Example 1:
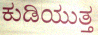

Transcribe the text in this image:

ಕುಡಿಯುತ್ತ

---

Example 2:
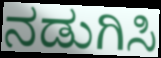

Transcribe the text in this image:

ನಡುಗಿಸಿ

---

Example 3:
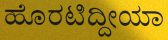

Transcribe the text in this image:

ಹೊರಟಿದ್ದೀಯಾ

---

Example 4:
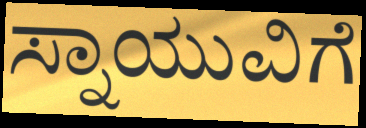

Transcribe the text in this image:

ಸ್ನಾಯುವಿಗೆ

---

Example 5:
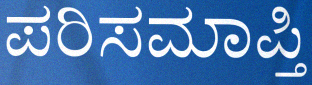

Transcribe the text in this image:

ಪರಿಸಮಾಪ್ತಿ